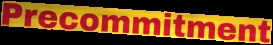
Precommitment